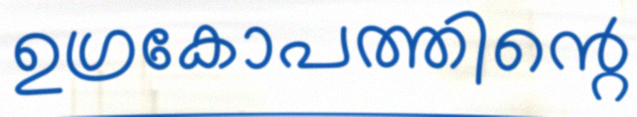
ഉഗ്രകോപത്തിന്റെ